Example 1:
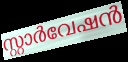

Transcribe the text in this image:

സ്റ്റാർവേഷൻ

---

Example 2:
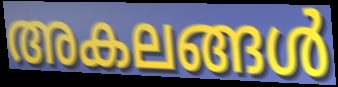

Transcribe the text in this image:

അകലങ്ങൾ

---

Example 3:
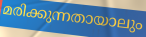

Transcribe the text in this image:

മരിക്കുന്നതായാലും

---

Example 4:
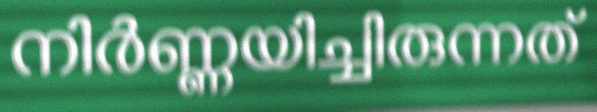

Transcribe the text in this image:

നിർണ്ണയിച്ചിരുന്നത്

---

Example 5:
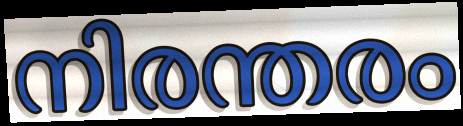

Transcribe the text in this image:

നിരന്തരം